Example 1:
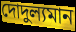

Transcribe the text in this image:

দোদুল্যমান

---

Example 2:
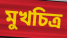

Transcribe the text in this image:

মুখচিত্র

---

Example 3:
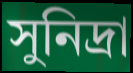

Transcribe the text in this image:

সুনিদ্রা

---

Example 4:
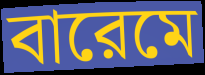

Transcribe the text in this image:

বারেমে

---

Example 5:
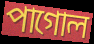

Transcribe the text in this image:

পাগোল